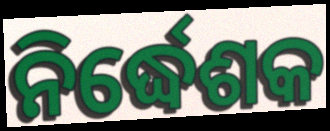
ନିର୍ଦ୍ଧେଶକ